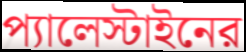
প্যালেস্টাইনের